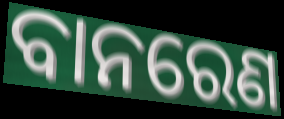
ବାନରେଣ